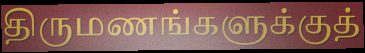
திருமணங்களுக்குத்